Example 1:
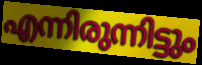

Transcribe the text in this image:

എന്നിരുന്നിട്ടും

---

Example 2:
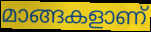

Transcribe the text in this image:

മാങ്ങകളാണ്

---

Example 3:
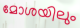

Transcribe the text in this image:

മോശയിലും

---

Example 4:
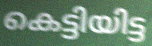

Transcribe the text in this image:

കെട്ടിയിട്ട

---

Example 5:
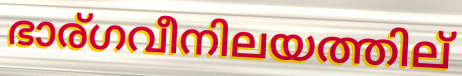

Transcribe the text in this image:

ഭാര്ഗവീനിലയത്തില്